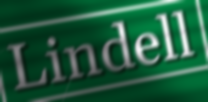
Lindell